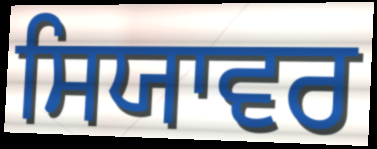
ਸਿਯਾਵਰ